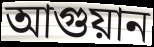
আগুয়ান